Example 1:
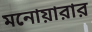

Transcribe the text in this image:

মনোয়ারার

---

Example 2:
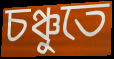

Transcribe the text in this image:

চঞ্চুতে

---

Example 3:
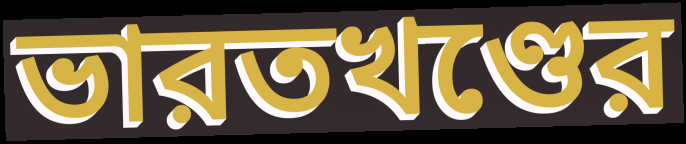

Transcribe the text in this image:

ভারতখণ্ডের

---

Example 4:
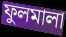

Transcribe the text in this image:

ফুলমালা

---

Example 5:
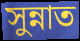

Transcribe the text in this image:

সুন্নাত